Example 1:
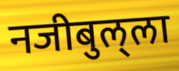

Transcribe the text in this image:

नजीबुल्ला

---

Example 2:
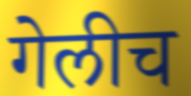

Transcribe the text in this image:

गेलीच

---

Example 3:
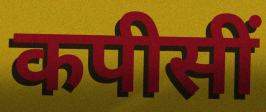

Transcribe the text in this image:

कपीसीं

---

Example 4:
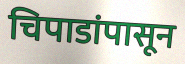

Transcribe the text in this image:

चिपाडांपासून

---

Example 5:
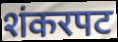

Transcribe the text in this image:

शंकरपट